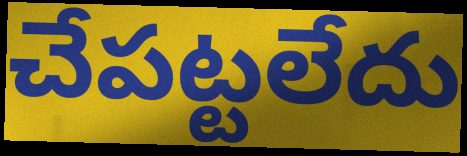
చేపట్టలేదు